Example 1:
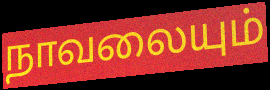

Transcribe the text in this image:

நாவலையும்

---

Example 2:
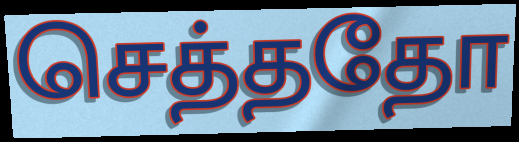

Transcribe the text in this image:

செத்ததோ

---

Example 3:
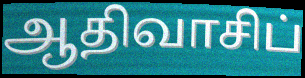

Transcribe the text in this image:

ஆதிவாசிப்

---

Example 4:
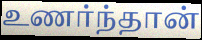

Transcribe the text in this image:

உணர்ந்தான்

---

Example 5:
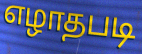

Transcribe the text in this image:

எழாதபடி